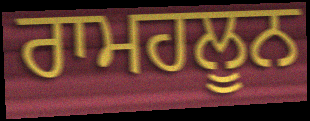
ਰਾਮਹਲੂਨ